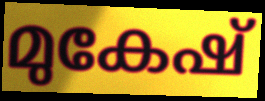
മുകേഷ്